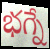
భగ్నే